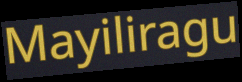
Mayiliragu